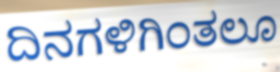
ದಿನಗಳಿಗಿಂತಲೂ